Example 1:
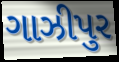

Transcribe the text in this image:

ગાઝીપુર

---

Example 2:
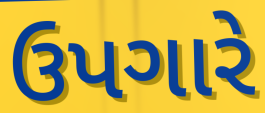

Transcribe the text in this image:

ઉપગારે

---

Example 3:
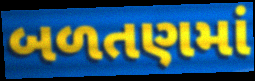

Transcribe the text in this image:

બળતણમાં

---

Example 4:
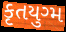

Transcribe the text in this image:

કૃતયુગ્મ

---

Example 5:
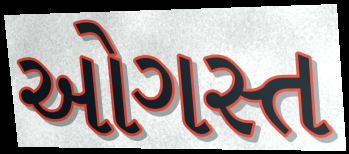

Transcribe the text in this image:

ઓગસ્ત